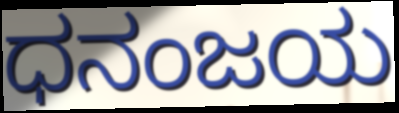
ಧನಂಜಯ